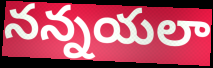
నన్నయలా